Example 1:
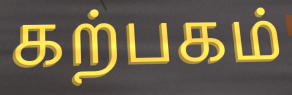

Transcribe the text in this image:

கற்பகம்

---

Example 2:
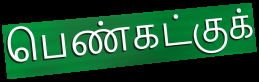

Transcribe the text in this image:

பெண்கட்குக்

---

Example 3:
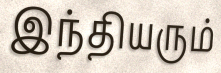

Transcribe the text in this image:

இந்தியரும்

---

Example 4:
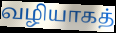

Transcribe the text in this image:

வழியாகத்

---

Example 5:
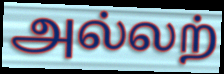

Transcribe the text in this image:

அல்லற்